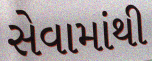
સેવામાંથી